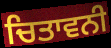
ਚਿਤਾਵਨੀ